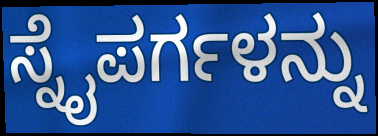
ಸ್ನೈಪರ್ಗಳನ್ನು